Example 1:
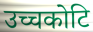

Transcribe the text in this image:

उच्चकोटि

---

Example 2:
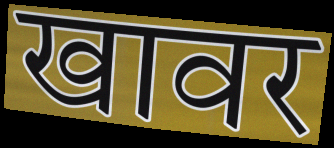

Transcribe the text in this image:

खावर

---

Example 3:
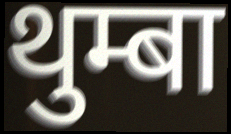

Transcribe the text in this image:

थुम्बा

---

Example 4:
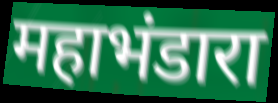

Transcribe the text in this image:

महाभंडारा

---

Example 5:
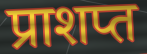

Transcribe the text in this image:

प्राशप्त